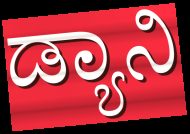
ಡ್ಯಾನಿ